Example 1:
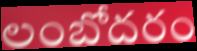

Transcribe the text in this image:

లంబోదరం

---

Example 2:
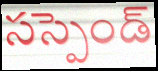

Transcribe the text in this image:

సస్పెండ్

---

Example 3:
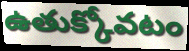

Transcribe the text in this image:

ఉతుక్కోవటం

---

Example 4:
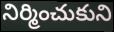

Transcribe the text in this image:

నిర్మించుకుని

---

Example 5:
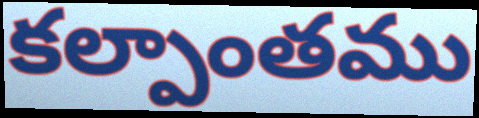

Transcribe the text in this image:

కల్పాంతము